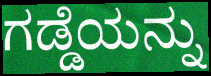
ಗಡ್ಡೆಯನ್ನು